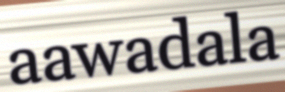
aawadala